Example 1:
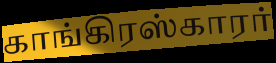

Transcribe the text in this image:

காங்கிரஸ்காரர்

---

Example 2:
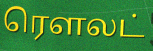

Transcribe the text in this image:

ரௌலட்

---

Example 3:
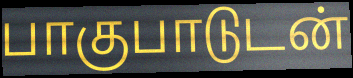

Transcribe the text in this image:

பாகுபாடுடன்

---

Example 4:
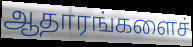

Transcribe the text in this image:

ஆதாரங்களைச்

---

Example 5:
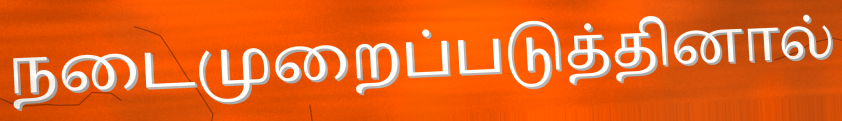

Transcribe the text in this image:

நடைமுறைப்படுத்தினால்